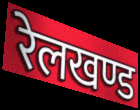
रेलखण्ड